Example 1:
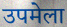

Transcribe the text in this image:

उपमेला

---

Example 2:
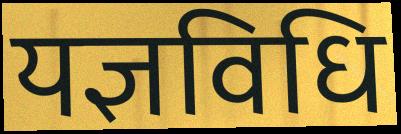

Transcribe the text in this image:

यज्ञविधि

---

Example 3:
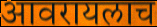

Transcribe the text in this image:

आवरायलाच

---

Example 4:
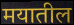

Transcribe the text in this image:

मयातील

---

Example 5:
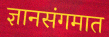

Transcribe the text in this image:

ज्ञानसंगमात